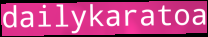
dailykaratoa